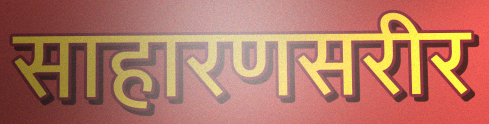
साहारणसरीर